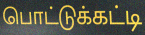
பொட்டுக்கட்டி